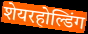
शेयरहोल्डिंग